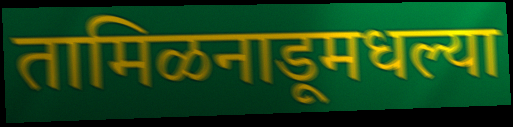
तामिळनाडूमधल्या